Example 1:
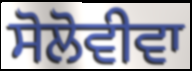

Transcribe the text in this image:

ਸੋਲੋਵੀਵਾ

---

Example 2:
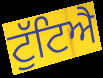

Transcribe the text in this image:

ਟੁੱਟਿਐ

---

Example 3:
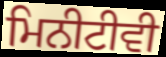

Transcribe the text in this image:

ਮਿਨੀਟੀਵੀ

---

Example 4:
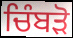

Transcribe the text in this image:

ਚਿੰਬੜੋ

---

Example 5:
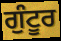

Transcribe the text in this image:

ਗੁੰਟੂਰ